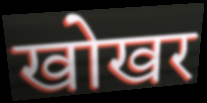
खोखर